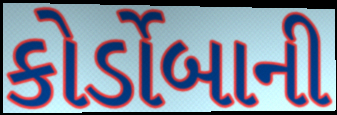
કોર્ડોબાની